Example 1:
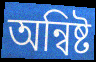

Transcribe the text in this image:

অন্বিষ্ট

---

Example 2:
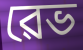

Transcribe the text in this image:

ৱেভ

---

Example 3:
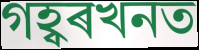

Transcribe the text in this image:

গহ্বৰখনত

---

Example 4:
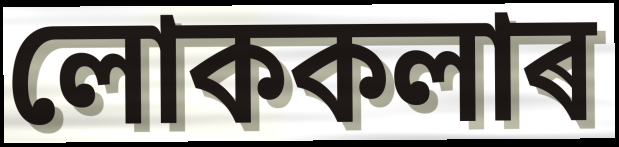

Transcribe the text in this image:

লোককলাৰ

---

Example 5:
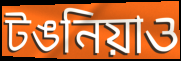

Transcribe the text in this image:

টঙনিয়াও